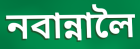
নবান্নালৈ